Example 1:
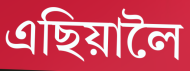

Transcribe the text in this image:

এছিয়ালৈ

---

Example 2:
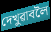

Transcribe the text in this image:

দেখুৱাবলৈ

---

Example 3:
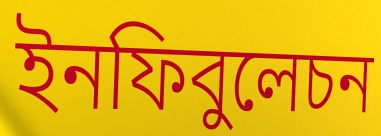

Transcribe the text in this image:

ইনফিবুলেচন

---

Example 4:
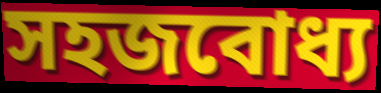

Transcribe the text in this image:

সহজবোধ্য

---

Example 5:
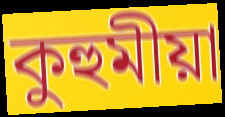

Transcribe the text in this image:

কুহুমীয়া